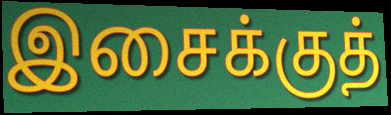
இசைக்குத்